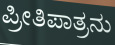
ಪ್ರೀತಿಪಾತ್ರನು